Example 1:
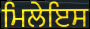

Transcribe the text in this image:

ਮਿਲੇਇਸ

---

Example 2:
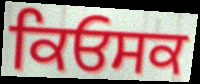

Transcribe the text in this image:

ਕਿਓਸਕ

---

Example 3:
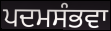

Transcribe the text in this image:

ਪਦਮਸੰਭਵਾ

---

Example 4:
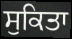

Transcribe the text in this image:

ਸੁਕਿਤਾ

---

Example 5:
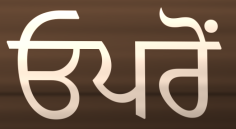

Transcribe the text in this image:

ਓਪਰੋਂ